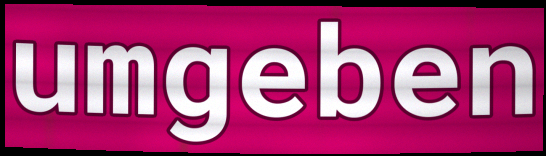
umgeben